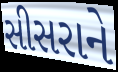
સીસરાને